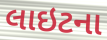
લાઇટના